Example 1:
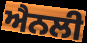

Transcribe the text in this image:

ਐਨਲੀ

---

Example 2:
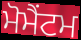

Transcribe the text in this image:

ਮੋਮੈਂਟਮ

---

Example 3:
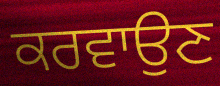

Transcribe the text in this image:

ਕਰਵਾਉਣ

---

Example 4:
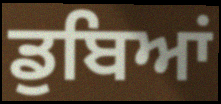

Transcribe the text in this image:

ਡੁਬਿਆਂ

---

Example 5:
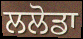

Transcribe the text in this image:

ਲਲੋਡਾ